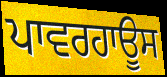
ਪਾਵਰਹਾਊਸ